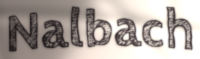
Nalbach